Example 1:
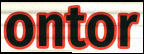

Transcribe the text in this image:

ontor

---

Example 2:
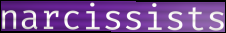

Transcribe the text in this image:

narcissists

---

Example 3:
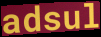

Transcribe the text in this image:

adsul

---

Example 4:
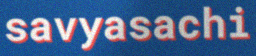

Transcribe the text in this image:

savyasachi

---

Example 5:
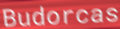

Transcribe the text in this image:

Budorcas